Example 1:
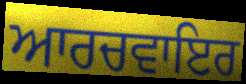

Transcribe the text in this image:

ਆਰਚਵਾਇਰ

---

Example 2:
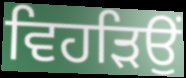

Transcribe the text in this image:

ਵਿਹੜਿਉਂ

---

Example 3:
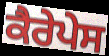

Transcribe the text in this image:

ਕੈਰੇਪੇਸ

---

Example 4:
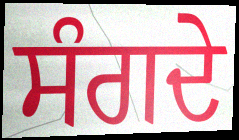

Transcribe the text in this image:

ਸੰਗਦੇ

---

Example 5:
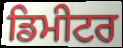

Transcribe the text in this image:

ਡਿਮੀਟਰ